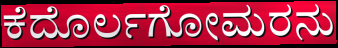
ಕೆದೊರ್ಲಗೋಮರನು